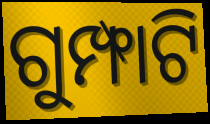
ଗୁମ୍ଫାଟି